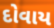
દોવાય